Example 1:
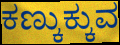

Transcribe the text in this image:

ಕಣ್ಕುಕ್ಕುವ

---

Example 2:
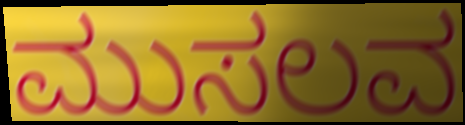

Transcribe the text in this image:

ಮುಸಲವ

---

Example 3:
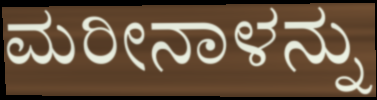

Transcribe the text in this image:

ಮರೀನಾಳನ್ನು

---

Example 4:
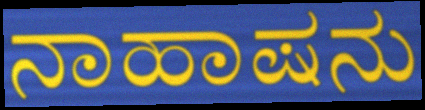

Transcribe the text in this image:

ನಾಹಾಷನು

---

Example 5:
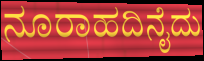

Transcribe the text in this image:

ನೂರಾಹದಿನೈದು